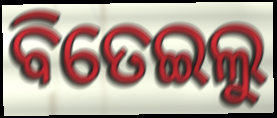
ବିତେଇଲୁ